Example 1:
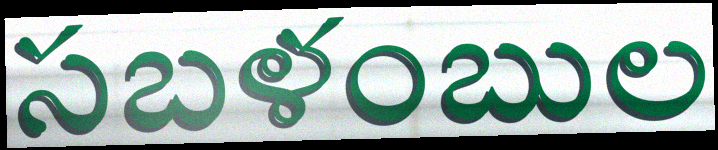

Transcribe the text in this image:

సబళంబుల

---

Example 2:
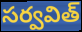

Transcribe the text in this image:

సర్వవిత్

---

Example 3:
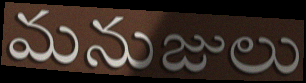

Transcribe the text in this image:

మనుజులు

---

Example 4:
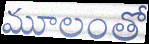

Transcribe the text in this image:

మూలంతో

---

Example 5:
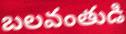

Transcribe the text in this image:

బలవంతుడి